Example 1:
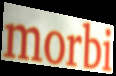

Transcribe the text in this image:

morbi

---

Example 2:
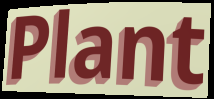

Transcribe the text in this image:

Plant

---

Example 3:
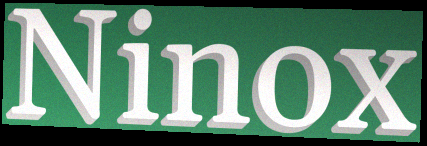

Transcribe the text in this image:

Ninox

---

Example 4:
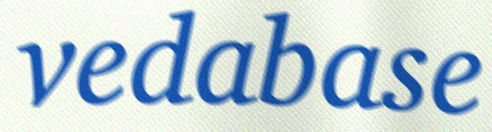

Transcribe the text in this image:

vedabase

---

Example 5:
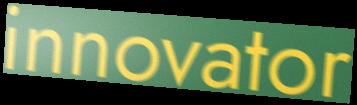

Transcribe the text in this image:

innovator